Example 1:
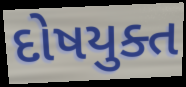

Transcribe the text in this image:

દોષયુક્ત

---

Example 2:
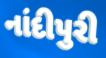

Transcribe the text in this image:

નાંદીપુરી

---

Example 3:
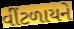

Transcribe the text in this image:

વીંટળાયને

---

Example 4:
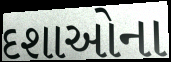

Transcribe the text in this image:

દશાઓના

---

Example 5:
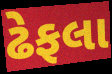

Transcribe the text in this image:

ઢેફલા